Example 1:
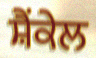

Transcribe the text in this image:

ਸ਼ੈਂਕੇਲ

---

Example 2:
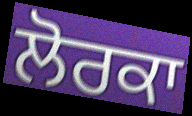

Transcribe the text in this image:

ਲੋਰਕਾ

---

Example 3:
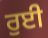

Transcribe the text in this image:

ਰੁਈ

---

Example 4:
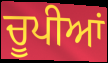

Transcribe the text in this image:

ਚੂਪੀਆਂ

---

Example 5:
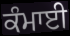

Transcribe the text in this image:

ਕੰਮਾਈ